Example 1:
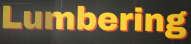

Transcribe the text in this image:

Lumbering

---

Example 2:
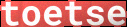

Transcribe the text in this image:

toetse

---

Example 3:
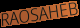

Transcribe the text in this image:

RAOSAHEB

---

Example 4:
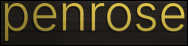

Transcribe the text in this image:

penrose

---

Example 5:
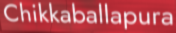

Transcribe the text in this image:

Chikkaballapura